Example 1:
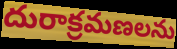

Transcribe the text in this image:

దురాక్రమణలను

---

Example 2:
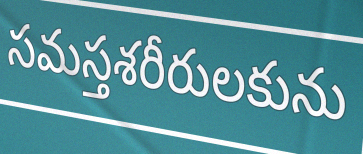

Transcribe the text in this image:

సమస్తశరీరులకును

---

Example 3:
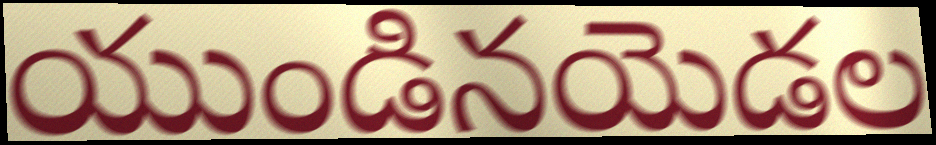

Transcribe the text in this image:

యుండినయెడల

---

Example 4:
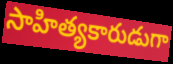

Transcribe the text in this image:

సాహిత్యకారుడుగా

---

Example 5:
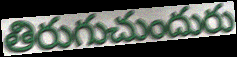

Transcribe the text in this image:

తిరుగుచుందురు